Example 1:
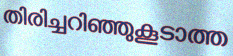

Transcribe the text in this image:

തിരിച്ചറിഞ്ഞുകൂടാത്ത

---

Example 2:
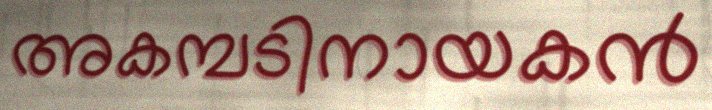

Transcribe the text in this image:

അകമ്പടിനായകൻ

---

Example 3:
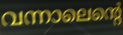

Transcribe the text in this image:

വന്നാലെന്റെ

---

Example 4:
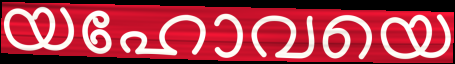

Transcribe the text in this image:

യഹോവയെ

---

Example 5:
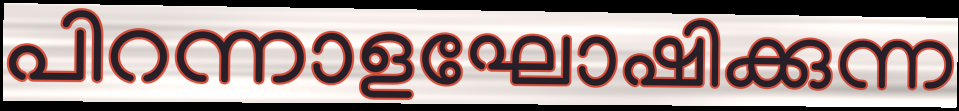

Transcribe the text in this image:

പിറന്നാളഘോഷിക്കുന്ന